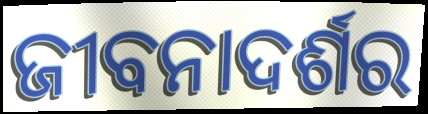
ଜୀବନାଦର୍ଶର